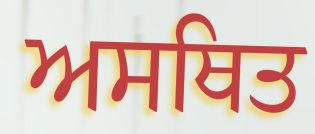
ਅਸਥਿਤ